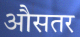
औसतर